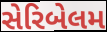
સેરિબેલમ